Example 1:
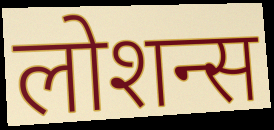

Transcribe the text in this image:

लोशन्स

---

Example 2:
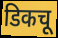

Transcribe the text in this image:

डिकचू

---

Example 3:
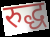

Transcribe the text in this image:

रुद्ध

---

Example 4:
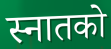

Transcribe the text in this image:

स्नातको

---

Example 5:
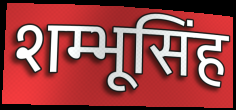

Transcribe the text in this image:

शम्भूसिंह